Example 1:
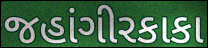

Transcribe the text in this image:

જહાંગીરકાકા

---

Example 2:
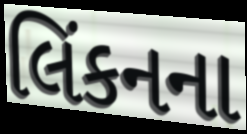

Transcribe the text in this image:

લિંકનના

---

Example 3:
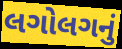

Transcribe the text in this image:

લગોલગનું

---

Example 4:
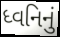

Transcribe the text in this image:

ધ્વનિનું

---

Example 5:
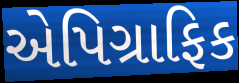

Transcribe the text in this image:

એપિગ્રાફિક